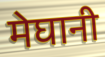
मेघानी